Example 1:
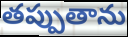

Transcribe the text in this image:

తప్పుతాను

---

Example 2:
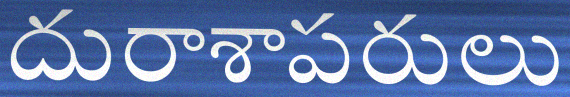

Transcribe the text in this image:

దురాశాపరులు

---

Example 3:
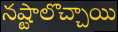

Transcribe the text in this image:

నష్టాలొచ్చాయి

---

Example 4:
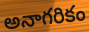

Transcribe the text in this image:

అనాగరికం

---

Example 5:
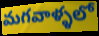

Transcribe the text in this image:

మగవాళ్ళలో